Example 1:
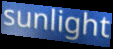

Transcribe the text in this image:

sunlight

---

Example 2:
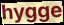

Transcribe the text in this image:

hygge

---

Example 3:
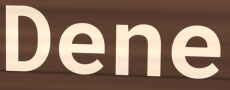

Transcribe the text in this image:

Dene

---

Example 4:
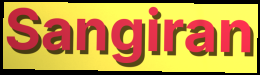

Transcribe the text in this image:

Sangiran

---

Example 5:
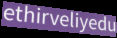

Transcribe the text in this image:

ethirveliyedu